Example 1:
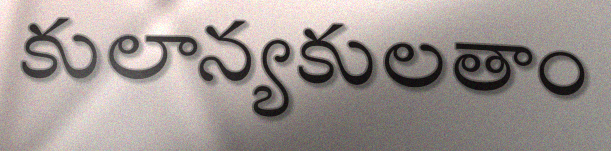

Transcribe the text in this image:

కులాన్యకులతాం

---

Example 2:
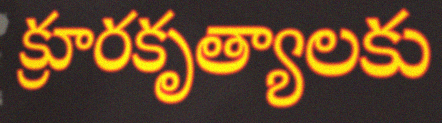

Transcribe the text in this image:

క్రూరకృత్యాలకు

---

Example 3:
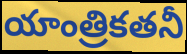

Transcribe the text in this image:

యాంత్రికతనీ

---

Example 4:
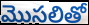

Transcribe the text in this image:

మొసలితో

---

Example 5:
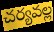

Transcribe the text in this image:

చర్యవల్ల